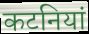
कटनियां